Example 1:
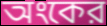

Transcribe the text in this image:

অংকের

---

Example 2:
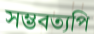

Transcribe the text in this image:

সম্ভবত্যপি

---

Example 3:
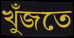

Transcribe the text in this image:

খুঁজতে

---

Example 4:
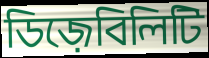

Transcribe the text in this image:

ডিজ়েবিলিটি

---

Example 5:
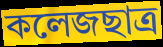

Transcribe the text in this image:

কলেজছাত্র